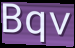
Bqv